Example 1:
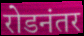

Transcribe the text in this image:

रोडनंतर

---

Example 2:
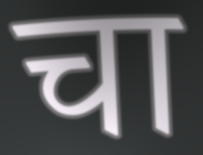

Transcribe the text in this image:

चा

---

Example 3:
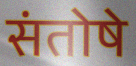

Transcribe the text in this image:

संतोषे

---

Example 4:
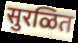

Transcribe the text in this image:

सुरळित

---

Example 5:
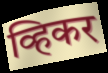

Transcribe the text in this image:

व्हिकर